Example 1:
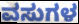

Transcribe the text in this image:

ವಸುಗಳ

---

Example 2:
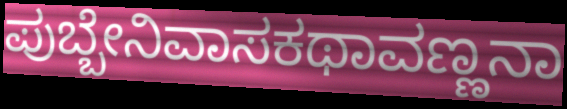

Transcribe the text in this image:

ಪುಬ್ಬೇನಿವಾಸಕಥಾವಣ್ಣನಾ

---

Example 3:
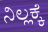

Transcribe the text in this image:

ನಿಲ್ಲಕ್ಕೆ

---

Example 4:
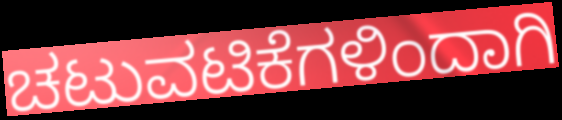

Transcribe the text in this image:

ಚಟುವಟಿಕೆಗಳಿಂದಾಗಿ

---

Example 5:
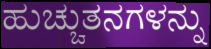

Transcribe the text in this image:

ಹುಚ್ಚುತನಗಳನ್ನು